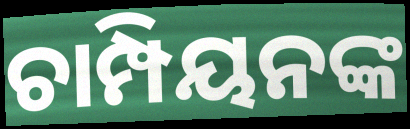
ଚାମ୍ପିୟନଙ୍କ